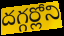
దగ్గర్లోని